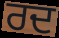
ਰਦ